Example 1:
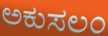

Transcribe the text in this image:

ಅಕುಸಲಂ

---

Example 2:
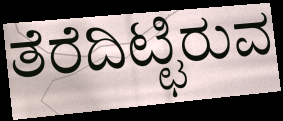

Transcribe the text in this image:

ತೆರೆದಿಟ್ಟಿರುವ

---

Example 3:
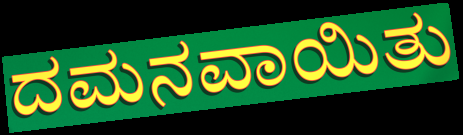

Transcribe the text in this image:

ದಮನವಾಯಿತು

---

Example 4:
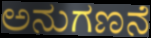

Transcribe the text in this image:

ಅನುಗಣನೆ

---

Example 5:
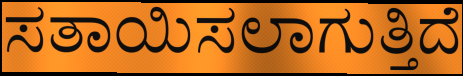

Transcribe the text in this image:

ಸತಾಯಿಸಲಾಗುತ್ತಿದೆ